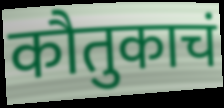
कौतुकाचं